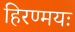
हिरण्मयः